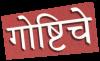
गोष्टिचे